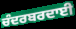
ਚੰਦਰਬਰਦਾਈ